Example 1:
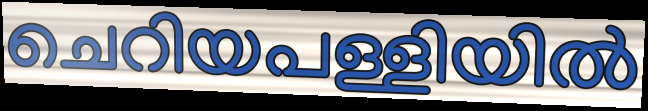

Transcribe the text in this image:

ചെറിയപള്ളിയിൽ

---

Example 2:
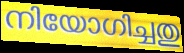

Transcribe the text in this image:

നിയോഗിച്ചതു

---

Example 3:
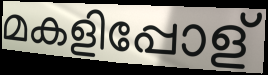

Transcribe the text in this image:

മകളിപ്പോള്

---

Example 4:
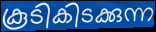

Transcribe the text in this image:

കൂടികിടക്കുന്ന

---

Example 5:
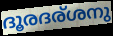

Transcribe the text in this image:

ദൂരദര്ശനു